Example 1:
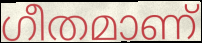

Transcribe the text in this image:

ഗീതമാണ്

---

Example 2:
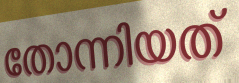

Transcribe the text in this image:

തോന്നിയത്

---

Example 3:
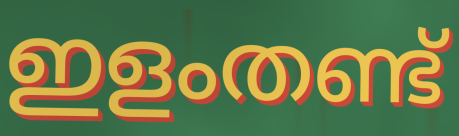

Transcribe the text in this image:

ഇളംതണ്ട്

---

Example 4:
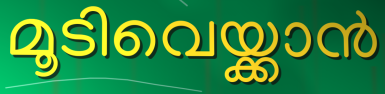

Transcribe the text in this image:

മൂടിവെയ്ക്കാൻ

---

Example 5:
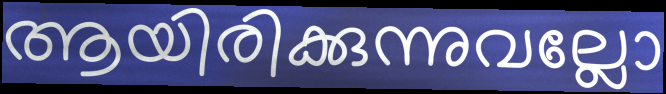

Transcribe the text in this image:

ആയിരിക്കുന്നുവല്ലോ